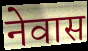
नेवास